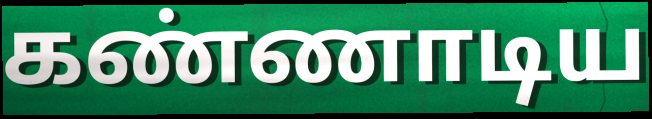
கண்ணாடிய